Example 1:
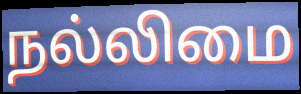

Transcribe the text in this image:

நல்லிமை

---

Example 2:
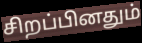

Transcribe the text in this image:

சிறப்பினதும்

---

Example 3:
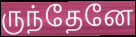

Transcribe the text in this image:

ருந்தேனே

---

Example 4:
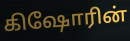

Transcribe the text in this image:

கிஷோரின்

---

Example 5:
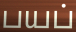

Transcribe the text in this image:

பயப்